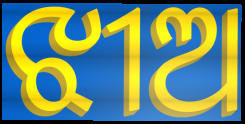
ଝୀଅ